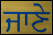
ਜਾਣੇ